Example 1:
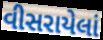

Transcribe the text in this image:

વીસરાયેલાં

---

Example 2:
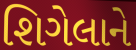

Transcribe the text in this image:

શિગેલાને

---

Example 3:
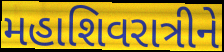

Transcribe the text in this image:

મહાશિવરાત્રીને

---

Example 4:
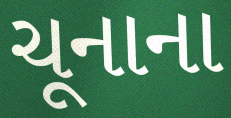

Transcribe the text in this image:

ચૂનાના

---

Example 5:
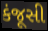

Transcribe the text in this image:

કંજૂસી